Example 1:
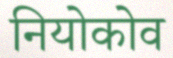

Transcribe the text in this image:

नियोकोव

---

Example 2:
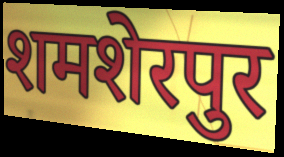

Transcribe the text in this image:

शमशेरपुर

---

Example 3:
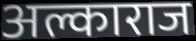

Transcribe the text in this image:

अल्काराज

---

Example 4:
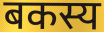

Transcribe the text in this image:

बकस्य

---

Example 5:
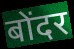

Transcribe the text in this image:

बोंदर